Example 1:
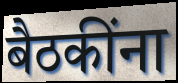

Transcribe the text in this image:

बैठकींना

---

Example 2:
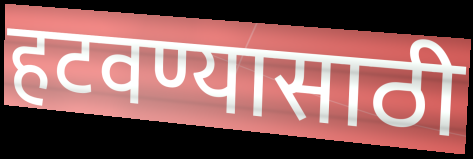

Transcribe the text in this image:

हटवण्यासाठी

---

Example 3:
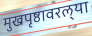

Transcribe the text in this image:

मुखपृष्ठावरल्या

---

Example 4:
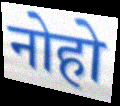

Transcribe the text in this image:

नोहो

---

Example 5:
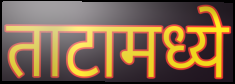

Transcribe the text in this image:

ताटामध्ये